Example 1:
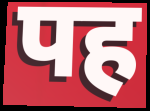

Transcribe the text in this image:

पह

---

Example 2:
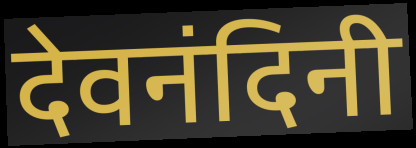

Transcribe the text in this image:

देवनंदिनी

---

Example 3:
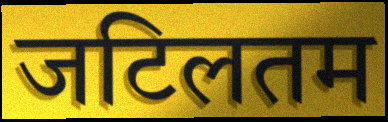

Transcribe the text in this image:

जटिलतम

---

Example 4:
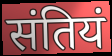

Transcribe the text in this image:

संतियं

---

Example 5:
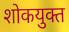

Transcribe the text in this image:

शोकयुक्त